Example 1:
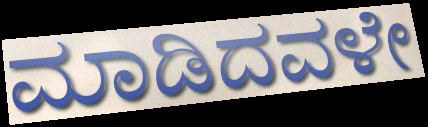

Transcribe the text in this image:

ಮಾಡಿದವಳೇ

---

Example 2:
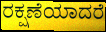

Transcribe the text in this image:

ರಕ್ಷಣೆಯಾದರೆ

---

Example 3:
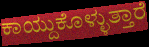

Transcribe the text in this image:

ಕಾಯ್ದುಕೊಳ್ಳುತ್ತಾರೆ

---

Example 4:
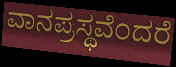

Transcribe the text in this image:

ವಾನಪ್ರಸ್ಥವೆಂದರೆ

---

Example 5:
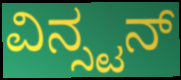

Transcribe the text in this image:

ವಿನ್ಸ್ಟನ್